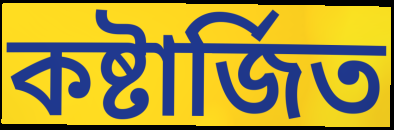
কষ্টার্জিত